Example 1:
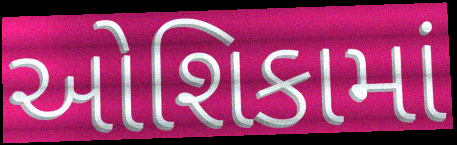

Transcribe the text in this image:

ઓશિકામાં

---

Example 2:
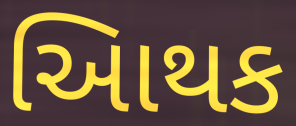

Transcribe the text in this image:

આિથક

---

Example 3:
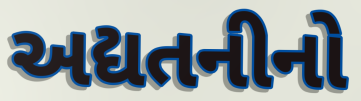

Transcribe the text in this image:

અદ્યતનીનો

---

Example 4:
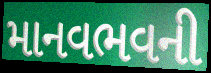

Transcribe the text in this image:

માનવભવની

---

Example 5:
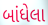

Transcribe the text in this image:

બાંધેલા